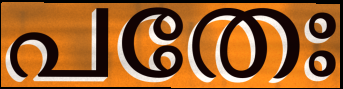
പതേഃ